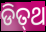
ଡିତ୍‍ଥ